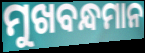
ମୁଖବନ୍ଧମାନ